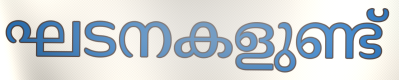
ഘടനകളുണ്ട്